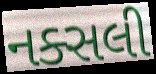
નક્સલી